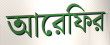
আরেফির